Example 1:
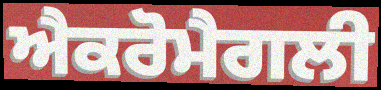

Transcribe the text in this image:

ਐਕਰੋਮੈਗਲੀ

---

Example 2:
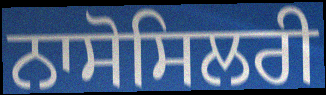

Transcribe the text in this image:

ਨਾਸੋਸਿਲਰੀ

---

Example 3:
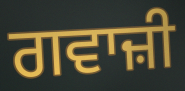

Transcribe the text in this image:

ਗਵਾਜ਼ੀ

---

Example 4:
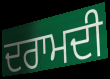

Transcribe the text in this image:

ਦਰਾਮਦੀ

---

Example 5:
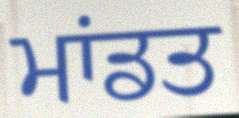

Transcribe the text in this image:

ਮਾਂਡਤ